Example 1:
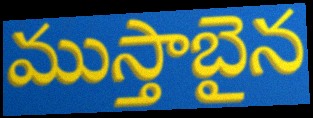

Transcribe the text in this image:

ముస్తాబైన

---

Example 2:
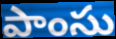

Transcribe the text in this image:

పాంసు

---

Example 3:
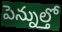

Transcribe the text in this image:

పెన్నుల్తో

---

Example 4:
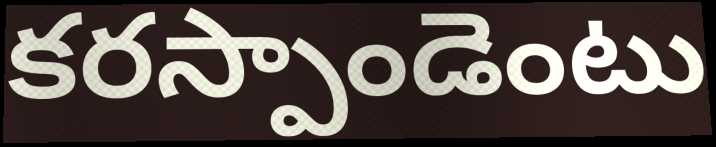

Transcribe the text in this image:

కరస్పాండెంటు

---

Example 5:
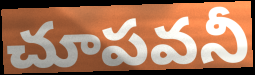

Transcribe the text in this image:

చూపవనీ